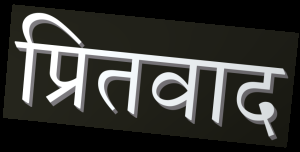
प्रितवाद